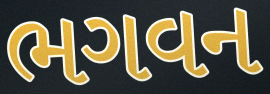
ભગવન